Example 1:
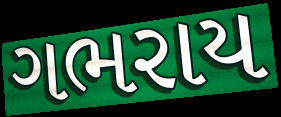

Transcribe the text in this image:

ગભરાય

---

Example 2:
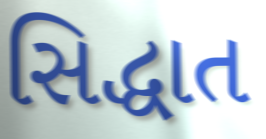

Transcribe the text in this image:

સિદ્ધાત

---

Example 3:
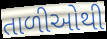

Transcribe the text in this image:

તાળીઓથી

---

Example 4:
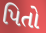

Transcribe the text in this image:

પિતો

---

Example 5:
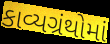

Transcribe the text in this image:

કાવ્યગ્રંથોમાં